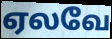
ஏலவே